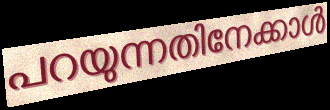
പറയുന്നതിനേക്കാൾ